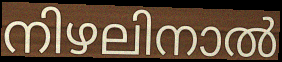
നിഴലിനാൽ